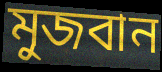
মুজবান